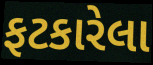
ફટકારેલા